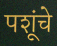
पशूंचे